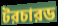
টরচারড